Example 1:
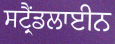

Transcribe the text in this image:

ਸਟ੍ਰੈਂਡਲਾਈਨ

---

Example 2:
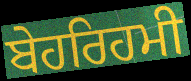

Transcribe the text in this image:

ਬੇਹਰਿਹਮੀ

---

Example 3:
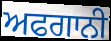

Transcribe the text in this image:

ਅਫਗਾਨੀ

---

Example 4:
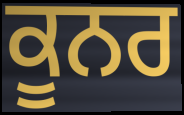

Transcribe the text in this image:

ਕੂਨਰ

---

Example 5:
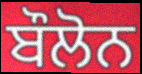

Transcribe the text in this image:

ਬੌਲੋਨ